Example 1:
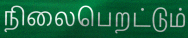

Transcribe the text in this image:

நிலைபெறட்டும்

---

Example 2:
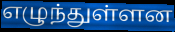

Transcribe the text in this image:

எழுந்துள்ளன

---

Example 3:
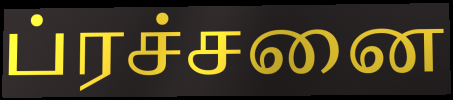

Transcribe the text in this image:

ப்ரச்சனை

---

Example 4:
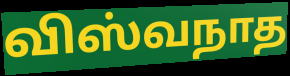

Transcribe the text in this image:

விஸ்வநாத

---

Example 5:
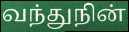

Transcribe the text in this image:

வந்துநின்